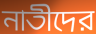
নাতীদের